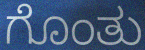
ಗೊಂತು